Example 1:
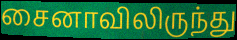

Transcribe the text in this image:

சைனாவிலிருந்து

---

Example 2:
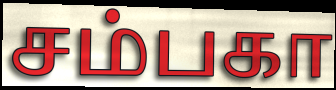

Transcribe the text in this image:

சம்பகா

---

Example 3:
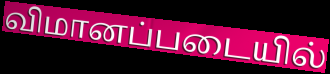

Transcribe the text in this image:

விமானப்படையில்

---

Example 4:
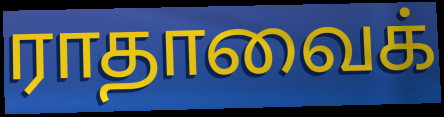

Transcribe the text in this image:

ராதாவைக்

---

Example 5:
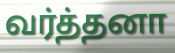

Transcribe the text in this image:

வர்த்தனா